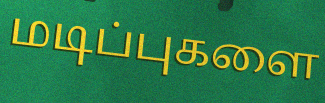
மடிப்புகளை